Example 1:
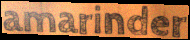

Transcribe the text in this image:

amarinder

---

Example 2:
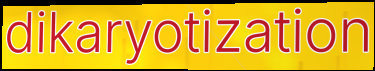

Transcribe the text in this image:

dikaryotization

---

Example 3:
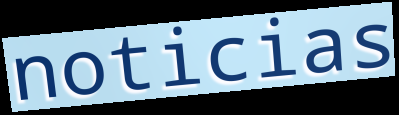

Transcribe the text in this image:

noticias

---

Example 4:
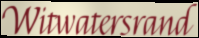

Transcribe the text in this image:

Witwatersrand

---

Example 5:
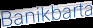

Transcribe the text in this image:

Banikbarta